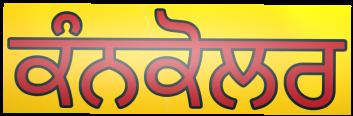
ਕੰਨਕੋਲਰ